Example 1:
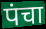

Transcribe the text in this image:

पंचा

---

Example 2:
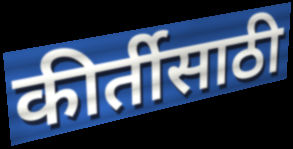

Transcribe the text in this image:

कीर्तीसाठी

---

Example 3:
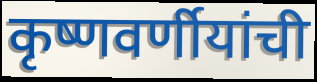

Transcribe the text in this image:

कृष्णवर्णीयांची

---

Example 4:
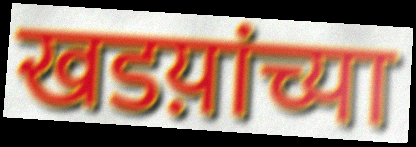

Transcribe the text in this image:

खडय़ांच्या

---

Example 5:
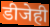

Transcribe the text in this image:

डीजेही